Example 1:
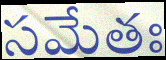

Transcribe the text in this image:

సమేతః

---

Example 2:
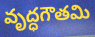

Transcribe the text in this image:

వృద్ధగౌతమి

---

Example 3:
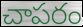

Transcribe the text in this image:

చాపరం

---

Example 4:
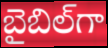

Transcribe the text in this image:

బైబిల్‌గా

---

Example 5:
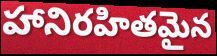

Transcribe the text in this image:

హానిరహితమైన